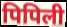
पिपिली